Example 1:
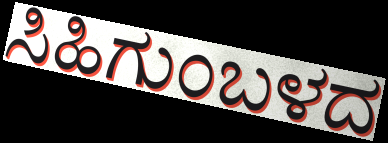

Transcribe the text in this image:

ಸಿಹಿಗುಂಬಳದ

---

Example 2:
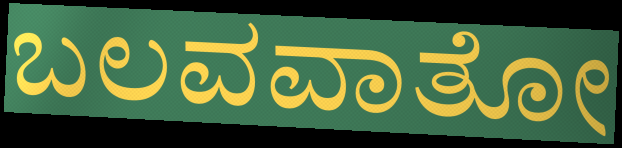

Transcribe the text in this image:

ಬಲವವಾತೋ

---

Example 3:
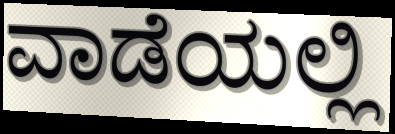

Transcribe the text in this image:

ವಾಡೆಯಲ್ಲಿ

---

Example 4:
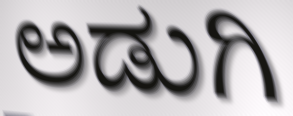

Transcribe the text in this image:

ಅಡುಗಿ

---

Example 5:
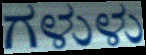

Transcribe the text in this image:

ಗಳುಳು